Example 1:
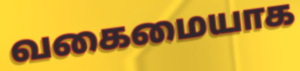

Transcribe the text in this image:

வகைமையாக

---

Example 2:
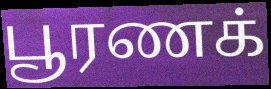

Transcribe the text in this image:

பூரணக்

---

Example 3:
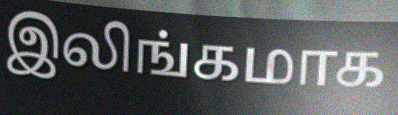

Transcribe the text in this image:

இலிங்கமாக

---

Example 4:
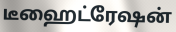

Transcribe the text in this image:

டீஹைட்ரேஷன்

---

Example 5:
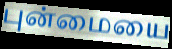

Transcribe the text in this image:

புன்மையை